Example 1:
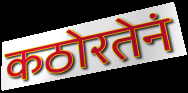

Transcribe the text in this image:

कठोरतेनं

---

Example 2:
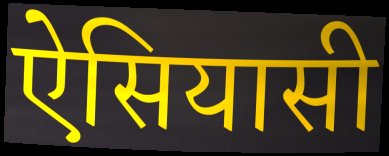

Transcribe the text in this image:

ऐसियासी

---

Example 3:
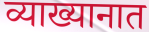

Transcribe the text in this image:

व्याख्यानात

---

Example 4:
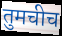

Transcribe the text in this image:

तुमचीच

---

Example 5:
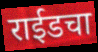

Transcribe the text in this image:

राईडचा